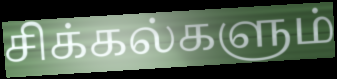
சிக்கல்களும்